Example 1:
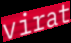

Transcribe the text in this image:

virat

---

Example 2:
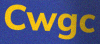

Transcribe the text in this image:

Cwgc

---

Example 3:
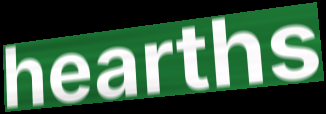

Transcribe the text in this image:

hearths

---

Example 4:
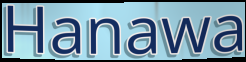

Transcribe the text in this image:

Hanawa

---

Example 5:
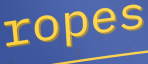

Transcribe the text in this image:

ropes